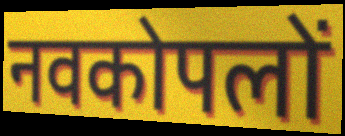
नवकोपलों